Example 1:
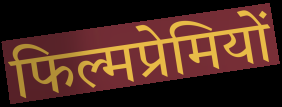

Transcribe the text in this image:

फिल्मप्रेमियों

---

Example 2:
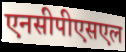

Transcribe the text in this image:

एनसीपीएसएल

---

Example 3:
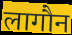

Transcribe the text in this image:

लागौन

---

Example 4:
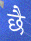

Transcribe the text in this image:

छै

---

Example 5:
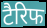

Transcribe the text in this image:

टैरिफ